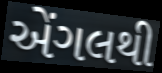
એંગલથી